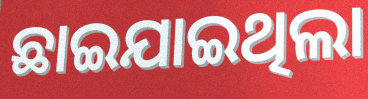
ଛାଇଯାଇଥିଲା